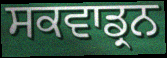
ਸਕਵਾਡ੍ਰਨ